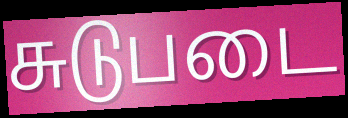
சுடுபடை